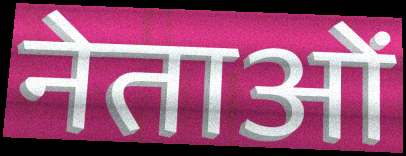
नेताओं